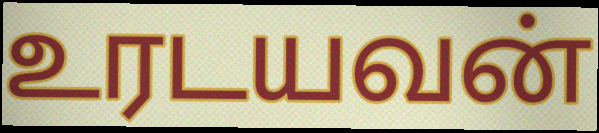
உரடயவன்